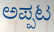
ಅಪ್ಪಟ